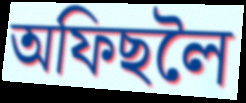
অফিছলৈ